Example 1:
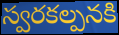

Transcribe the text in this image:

స్వరకల్పనకి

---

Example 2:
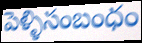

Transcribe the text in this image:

పెళ్ళిసంబంధం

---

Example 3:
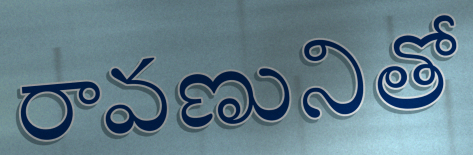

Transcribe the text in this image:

రావణునితో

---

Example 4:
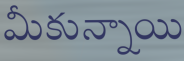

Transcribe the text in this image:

మీకున్నాయి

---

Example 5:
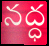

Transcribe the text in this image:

నద్ధ